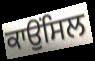
ਕਾਉਂਸਿਲ